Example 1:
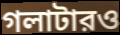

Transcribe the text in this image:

গলাটারও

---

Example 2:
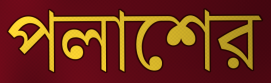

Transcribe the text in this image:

পলাশের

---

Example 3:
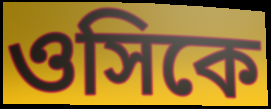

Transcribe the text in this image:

ওসিকে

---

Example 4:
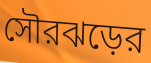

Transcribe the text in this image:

সৌরঝড়ের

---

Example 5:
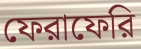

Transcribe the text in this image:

ফেরাফেরি